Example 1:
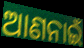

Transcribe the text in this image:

ଆଣନାଇଁ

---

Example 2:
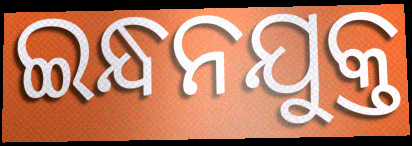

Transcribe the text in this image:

ଇନ୍ଧନଯୁକ୍ତ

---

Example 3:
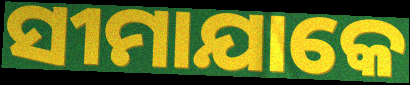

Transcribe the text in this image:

ସୀମାଯାକେ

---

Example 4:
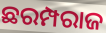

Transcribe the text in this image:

ଛରମ୍ପରାଜ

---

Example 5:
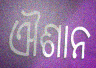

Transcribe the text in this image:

ଐଶାନ